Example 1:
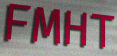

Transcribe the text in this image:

FMHT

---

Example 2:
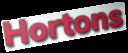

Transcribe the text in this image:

Hortons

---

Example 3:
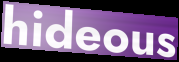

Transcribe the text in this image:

hideous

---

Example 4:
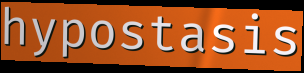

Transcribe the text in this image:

hypostasis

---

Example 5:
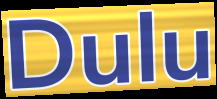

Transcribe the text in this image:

Dulu